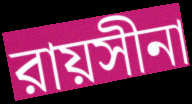
রায়সীনা